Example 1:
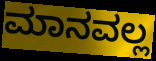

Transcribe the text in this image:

ಮಾನವಲ್ಲ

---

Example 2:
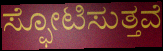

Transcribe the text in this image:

ಸ್ಫೋಟಿಸುತ್ತವೆ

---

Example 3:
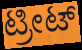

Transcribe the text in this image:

ಟ್ರೀಟ್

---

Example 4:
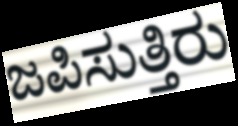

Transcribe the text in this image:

ಜಪಿಸುತ್ತಿರು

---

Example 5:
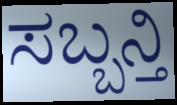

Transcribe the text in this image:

ಸಬ್ಬನ್ತಿ